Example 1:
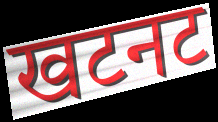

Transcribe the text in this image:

खटनट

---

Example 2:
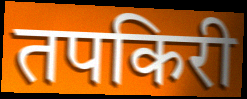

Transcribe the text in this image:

तपकिरी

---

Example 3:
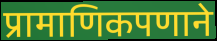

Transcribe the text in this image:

प्रामाणिकपणाने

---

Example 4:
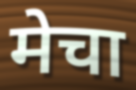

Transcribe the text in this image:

मेचा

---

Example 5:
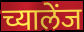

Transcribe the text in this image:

च्यालेंज